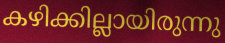
കഴിക്കില്ലായിരുന്നു